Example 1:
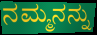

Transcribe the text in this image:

ನಮ್ಮನನ್ನು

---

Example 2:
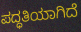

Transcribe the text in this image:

ಪದ್ಧತಿಯಾಗಿದೆ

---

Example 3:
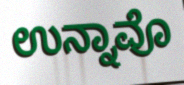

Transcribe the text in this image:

ಉನ್ನಾವೊ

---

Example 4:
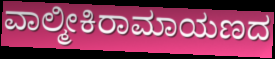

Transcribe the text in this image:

ವಾಲ್ಮೀಕಿರಾಮಾಯಣದ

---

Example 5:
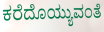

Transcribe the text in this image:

ಕರೆದೊಯ್ಯುವಂತೆ